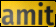
amit